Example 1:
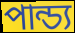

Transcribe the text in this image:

পান্ড্য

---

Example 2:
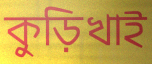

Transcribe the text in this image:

কুড়িখাই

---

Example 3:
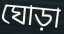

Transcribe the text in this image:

ঘোড়া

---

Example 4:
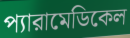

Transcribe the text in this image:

প্যারামেডিকেল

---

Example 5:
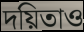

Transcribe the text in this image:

দয়িতাও